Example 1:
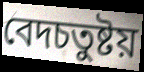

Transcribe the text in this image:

বেদচতুষ্টয়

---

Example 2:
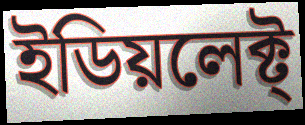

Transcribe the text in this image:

ইডিয়লেক্ট্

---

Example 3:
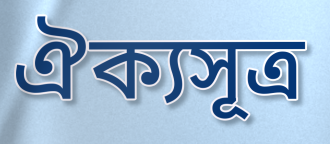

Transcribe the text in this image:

ঐক্যসূত্র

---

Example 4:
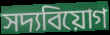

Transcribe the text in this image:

সদ্যবিয়োগ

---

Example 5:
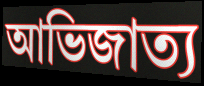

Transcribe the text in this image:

আভিজাত্য